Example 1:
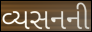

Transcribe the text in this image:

વ્યસનની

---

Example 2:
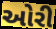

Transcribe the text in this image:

ઓરી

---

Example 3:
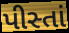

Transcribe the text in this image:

પીસ્તાં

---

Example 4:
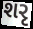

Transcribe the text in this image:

શરૃ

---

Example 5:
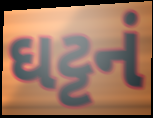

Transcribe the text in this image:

ઘટ્ટનં